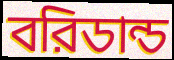
বরিডান্ড